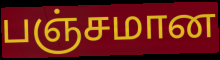
பஞ்சமான